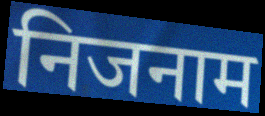
निजनाम